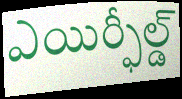
ఎయిర్ఫీల్డ్